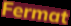
Fermat